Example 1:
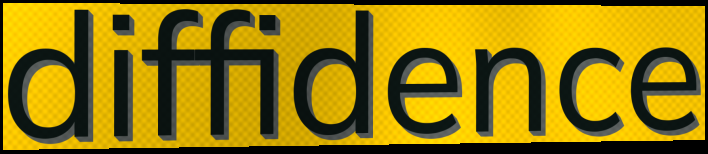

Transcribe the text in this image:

diffidence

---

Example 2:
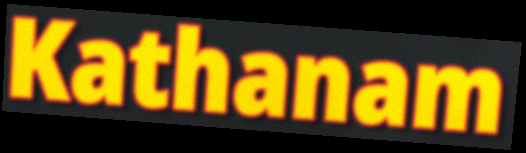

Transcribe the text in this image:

Kathanam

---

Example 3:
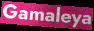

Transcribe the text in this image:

Gamaleya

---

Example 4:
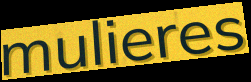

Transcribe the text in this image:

mulieres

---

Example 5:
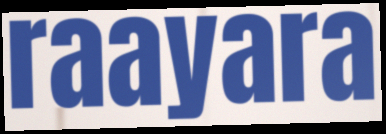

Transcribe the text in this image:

raayara